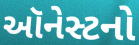
ઑનેસ્ટનો